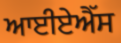
ਆਈਏਐੱਸ